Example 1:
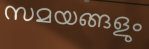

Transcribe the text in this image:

സമയങ്ങളും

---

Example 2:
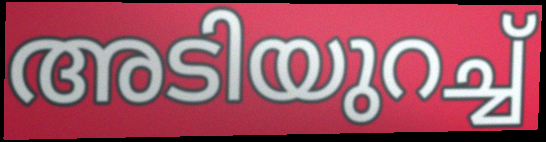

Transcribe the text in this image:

അടിയുറച്ച്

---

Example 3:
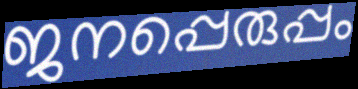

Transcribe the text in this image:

ജനപ്പെരുപ്പം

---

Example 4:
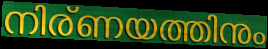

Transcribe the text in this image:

നിര്ണയത്തിനും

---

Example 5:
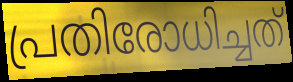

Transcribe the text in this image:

പ്രതിരോധിച്ചത്